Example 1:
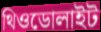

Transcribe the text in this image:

থিওডোলাইট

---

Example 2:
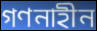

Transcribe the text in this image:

গণনাহীন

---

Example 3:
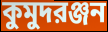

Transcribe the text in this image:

কুমুদরঞ্জন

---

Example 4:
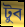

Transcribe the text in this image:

টুব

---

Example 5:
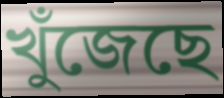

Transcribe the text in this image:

খুঁজেছে